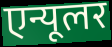
एन्यूलर